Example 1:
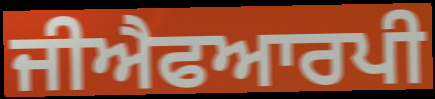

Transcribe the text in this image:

ਜੀਐਫਆਰਪੀ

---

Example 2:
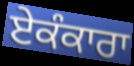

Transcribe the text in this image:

ਏਕੰਕਾਰਾ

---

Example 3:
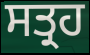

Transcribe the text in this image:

ਸਤ੍ਰਹ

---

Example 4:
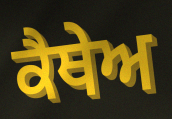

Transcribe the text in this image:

ਕੈਥੇਅ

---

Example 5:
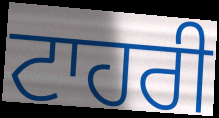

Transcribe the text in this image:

ਟਾਹਰੀ